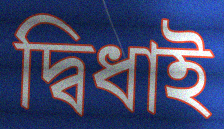
দ্বিধাই